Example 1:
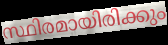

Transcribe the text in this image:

സ്ഥിരമായിരിക്കും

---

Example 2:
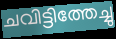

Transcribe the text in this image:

ചവിട്ടിത്തേച്ചു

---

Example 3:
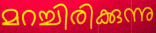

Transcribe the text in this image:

മറച്ചിരിക്കുന്നു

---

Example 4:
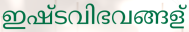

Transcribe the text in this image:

ഇഷ്ടവിഭവങ്ങള്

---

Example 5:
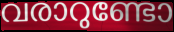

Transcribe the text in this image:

വരാറുണ്ടോ